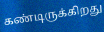
கண்டிருக்கிறது